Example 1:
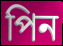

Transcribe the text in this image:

পিন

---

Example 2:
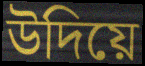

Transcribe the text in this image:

উদিয়ে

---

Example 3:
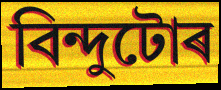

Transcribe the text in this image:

বিন্দুটোৰ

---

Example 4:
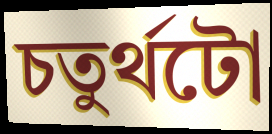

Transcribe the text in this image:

চতুৰ্থটো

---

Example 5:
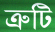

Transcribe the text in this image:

ত্ৰুটি